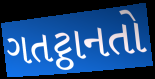
ગતટ્ઠાનતો